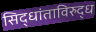
सिद्धांताविरुद्ध